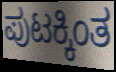
ಪುಟಕ್ಕಿಂತ